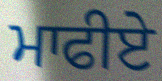
ਮਾਫੀਏ